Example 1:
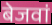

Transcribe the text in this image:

बेजवां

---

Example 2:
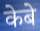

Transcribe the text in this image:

केबे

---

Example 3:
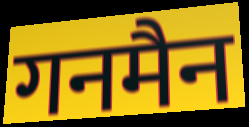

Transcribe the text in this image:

गनमैन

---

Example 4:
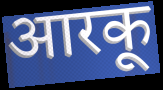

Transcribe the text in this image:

आरकू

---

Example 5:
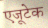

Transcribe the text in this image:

एजूटेक